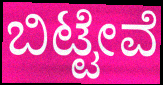
ಬಿಟ್ಟೇವೆ